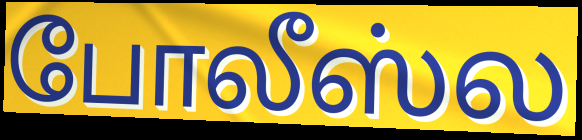
போலீஸ்ல